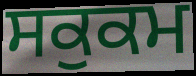
ਸਕੁਕਮ